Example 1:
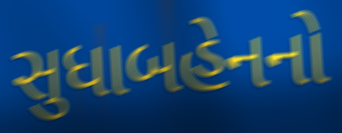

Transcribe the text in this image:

સુધાબહેનનો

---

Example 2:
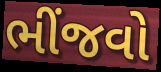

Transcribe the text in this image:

ભીંજવો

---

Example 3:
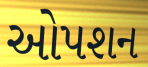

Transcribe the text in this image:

ઓપશન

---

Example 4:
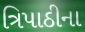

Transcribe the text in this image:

ત્રિપાઠીના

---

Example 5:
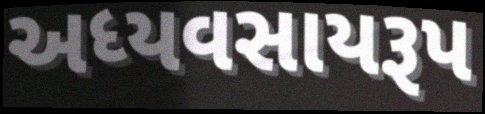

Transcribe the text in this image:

અધ્યવસાયરૂપ